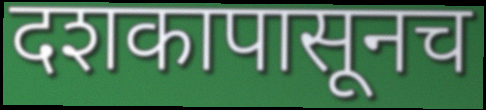
दशकापासूनच